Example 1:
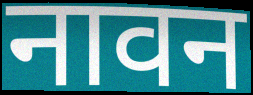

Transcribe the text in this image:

नावन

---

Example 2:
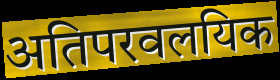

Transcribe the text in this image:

अतिपरवलयिक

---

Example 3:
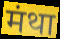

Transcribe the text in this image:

मंथा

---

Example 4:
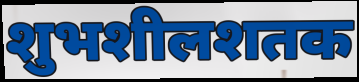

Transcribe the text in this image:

शुभशीलशतक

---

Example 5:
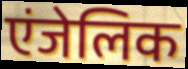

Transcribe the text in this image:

एंजेलिक